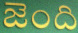
జెంది